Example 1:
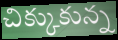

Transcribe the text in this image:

చిక్కుకున్న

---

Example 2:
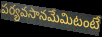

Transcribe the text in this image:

పర్యవసానమేమిటంటే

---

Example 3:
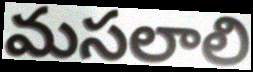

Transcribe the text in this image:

మసలాలి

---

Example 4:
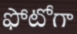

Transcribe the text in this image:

ఫోటోగా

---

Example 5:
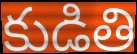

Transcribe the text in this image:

కుడితి